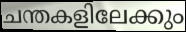
ചന്തകളിലേക്കും